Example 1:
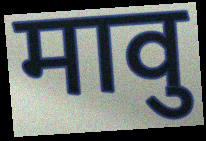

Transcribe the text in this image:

मावु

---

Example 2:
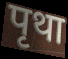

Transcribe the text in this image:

पृथा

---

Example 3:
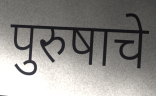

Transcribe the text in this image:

पुरुषाचे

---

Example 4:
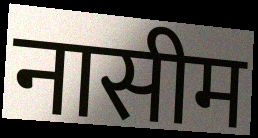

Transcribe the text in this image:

नासीम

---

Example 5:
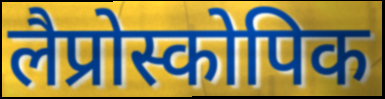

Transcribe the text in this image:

लैप्रोस्कोपिक